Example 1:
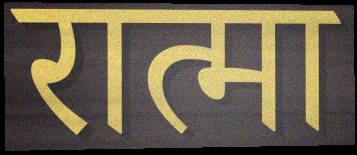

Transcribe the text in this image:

रात्मा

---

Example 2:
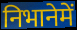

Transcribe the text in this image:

निभानेमें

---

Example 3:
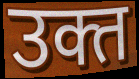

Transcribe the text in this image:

उक्‍त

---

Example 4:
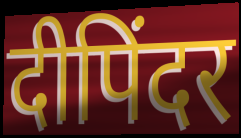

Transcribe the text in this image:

दीपिंदर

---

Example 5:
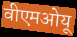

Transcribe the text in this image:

वीएमओयू